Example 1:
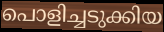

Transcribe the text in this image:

പൊളിച്ചടുക്കിയ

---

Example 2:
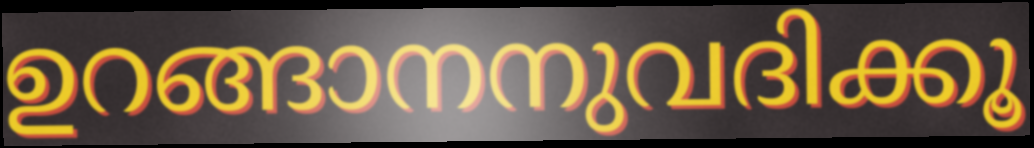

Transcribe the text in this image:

ഉറങ്ങാനനുവദിക്കൂ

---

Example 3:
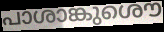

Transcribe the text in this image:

പാശാങ്കുശൌ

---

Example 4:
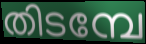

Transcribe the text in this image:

തിടമ്പേ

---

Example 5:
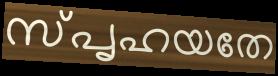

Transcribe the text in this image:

സ്പൃഹയതേ